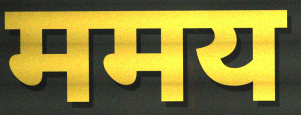
ममय